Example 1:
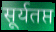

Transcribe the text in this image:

सूर्यतप्त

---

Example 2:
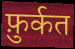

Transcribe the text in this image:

फ़ुर्कत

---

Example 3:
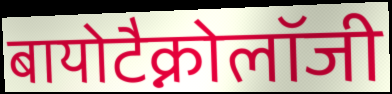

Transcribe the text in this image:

बायोटैक्नोलॉजी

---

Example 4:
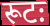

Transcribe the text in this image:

रूटः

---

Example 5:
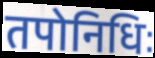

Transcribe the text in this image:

तपोनिधिः